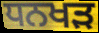
ਧਨਖੜ